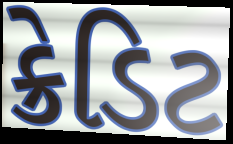
ક્રેડિટ